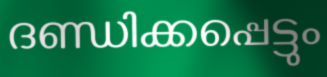
ദണ്ഡിക്കപ്പെട്ടും